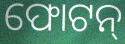
ଫୋଟନ୍